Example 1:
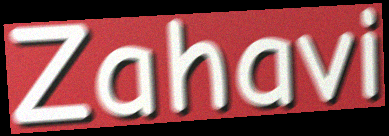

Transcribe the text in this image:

Zahavi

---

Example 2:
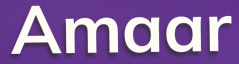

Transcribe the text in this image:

Amaar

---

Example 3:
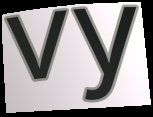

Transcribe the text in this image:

vy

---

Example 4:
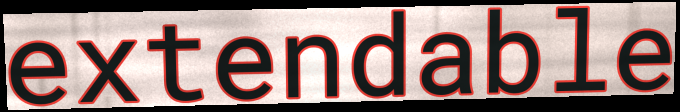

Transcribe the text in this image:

extendable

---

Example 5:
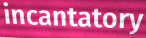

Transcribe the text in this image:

incantatory